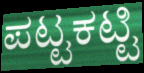
ಪಟ್ಟಕಟ್ಟಿ